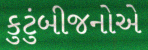
કુટુંબીજનોએ